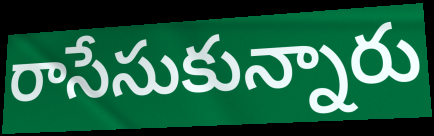
రాసేసుకున్నారు